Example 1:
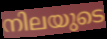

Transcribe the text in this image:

നിലയുടെ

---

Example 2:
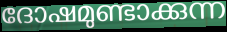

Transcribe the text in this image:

ദോഷമുണ്ടാക്കുന്ന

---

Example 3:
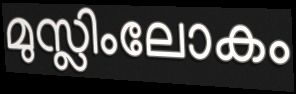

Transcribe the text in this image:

മുസ്ലിംലോകം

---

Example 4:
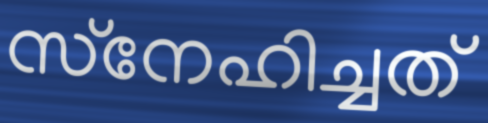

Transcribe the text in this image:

സ്‌നേഹിച്ചത്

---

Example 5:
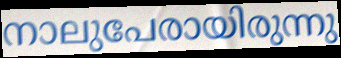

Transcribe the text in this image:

നാലുപേരായിരുന്നു